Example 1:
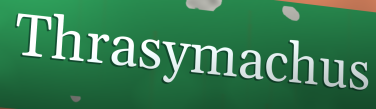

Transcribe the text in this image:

Thrasymachus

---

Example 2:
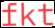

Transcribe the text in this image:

fkt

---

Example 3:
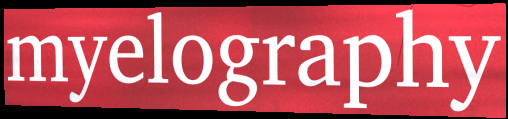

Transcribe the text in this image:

myelography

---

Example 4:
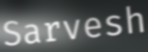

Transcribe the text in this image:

Sarvesh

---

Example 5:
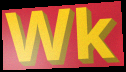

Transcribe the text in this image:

Wk